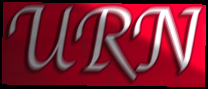
URN